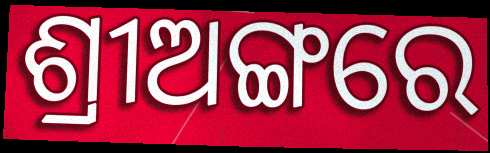
ଶ୍ରୀଅଙ୍ଗରେ